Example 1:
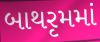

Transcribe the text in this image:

બાથરૃમમાં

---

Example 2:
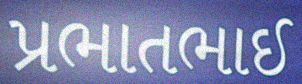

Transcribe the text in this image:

પ્રભાતભાઈ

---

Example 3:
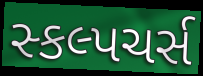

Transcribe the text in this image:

સ્કલ્પચર્સ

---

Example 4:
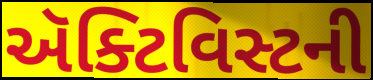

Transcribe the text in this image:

ઍક્ટિવિસ્ટની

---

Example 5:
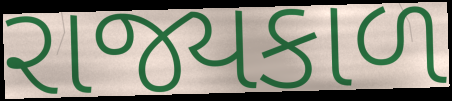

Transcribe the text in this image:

રાજ્યકાળ